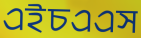
এইচএএস